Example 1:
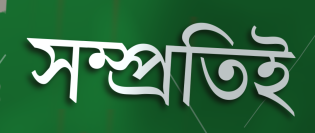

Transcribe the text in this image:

সম্প্রতিই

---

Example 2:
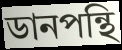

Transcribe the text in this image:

ডানপন্থি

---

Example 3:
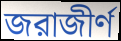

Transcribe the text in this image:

জরাজীর্ণ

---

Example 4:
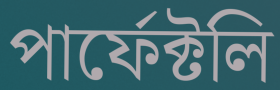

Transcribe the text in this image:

পার্ফেক্টলি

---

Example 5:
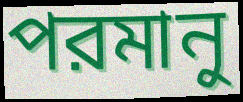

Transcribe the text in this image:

পরমানু